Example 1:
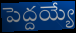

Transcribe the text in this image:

పెద్దయ్యే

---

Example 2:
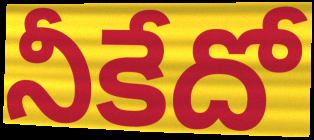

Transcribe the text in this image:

నీకేదో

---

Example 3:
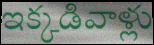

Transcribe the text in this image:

ఇక్కడివాళ్లు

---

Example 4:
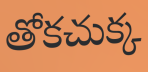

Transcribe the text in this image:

తోకచుక్క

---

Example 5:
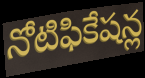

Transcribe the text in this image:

నోటిఫికేషన్ల